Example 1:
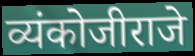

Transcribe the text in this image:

व्यंकोजीराजे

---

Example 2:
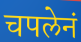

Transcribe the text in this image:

चपलेनं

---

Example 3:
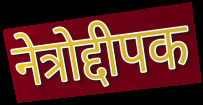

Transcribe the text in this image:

नेत्रोद्दीपक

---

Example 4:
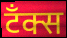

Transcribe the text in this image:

टँक्स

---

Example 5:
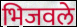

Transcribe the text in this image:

भिजवले